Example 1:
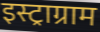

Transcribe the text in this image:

इस्ट्राग्राम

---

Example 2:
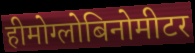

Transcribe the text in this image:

हीमोग्लोबिनोमीटर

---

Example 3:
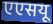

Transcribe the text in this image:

एएसयू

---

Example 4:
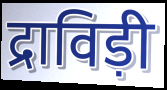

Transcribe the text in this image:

द्राविड़ी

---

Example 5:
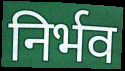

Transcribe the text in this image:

निर्भव